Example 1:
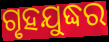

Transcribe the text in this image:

ଗୃହଯୁଦ୍ଧର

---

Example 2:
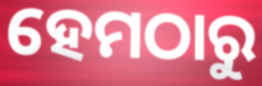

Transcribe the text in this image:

ହେମଠାରୁ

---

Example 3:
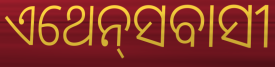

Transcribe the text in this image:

ଏଥେନ୍‌ସବାସୀ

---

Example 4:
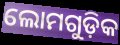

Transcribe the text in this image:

ଲୋମଗୁଡ଼ିକ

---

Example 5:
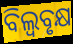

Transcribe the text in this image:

ବିଲ୍ୱବୃକ୍ଷ